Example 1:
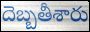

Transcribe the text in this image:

దెబ్బతీశారు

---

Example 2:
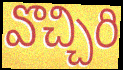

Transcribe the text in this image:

వొచ్చిరి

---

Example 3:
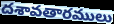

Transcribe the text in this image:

దశావతారములు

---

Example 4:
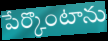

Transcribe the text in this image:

పేర్కొంటాను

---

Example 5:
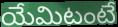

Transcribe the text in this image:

యేమిటంటే